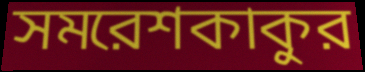
সমরেশকাকুর